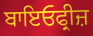
ਬਾਇਓਫ੍ਰੀਜ਼